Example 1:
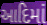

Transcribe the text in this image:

આદિમાં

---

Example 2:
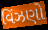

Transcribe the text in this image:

વિંઝણો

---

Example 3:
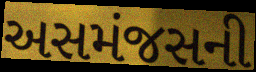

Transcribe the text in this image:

અસમંજસની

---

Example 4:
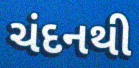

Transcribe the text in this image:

ચંદનથી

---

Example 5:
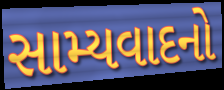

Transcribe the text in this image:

સામ્યવાદનો